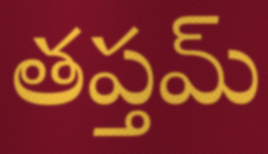
తప్తమ్